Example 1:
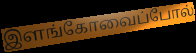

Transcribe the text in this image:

இளங்கோவைப்போல்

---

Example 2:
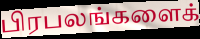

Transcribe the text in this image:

பிரபலங்களைக்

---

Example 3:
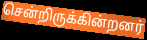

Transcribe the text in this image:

சென்றிருக்கின்றனர்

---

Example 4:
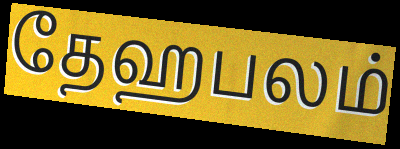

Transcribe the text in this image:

தேஹபலம்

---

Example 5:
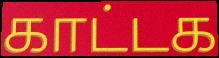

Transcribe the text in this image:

காட்டக